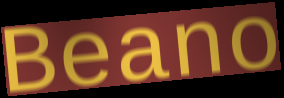
Beano